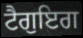
ਟੈਗੁਇਗ